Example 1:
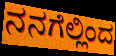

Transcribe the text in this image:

ನನಗೆಲ್ಲಿಂದ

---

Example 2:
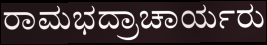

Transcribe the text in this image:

ರಾಮಭದ್ರಾಚಾರ್ಯರು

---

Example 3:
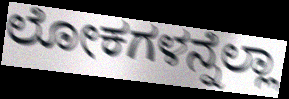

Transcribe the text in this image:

ಲೋಕಗಳನ್ನೆಲ್ಲಾ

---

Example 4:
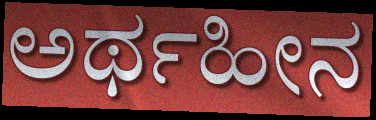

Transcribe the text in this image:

ಅರ್ಥಹೀನ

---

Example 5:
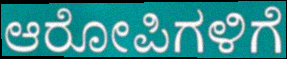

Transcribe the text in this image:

ಆರೋಪಿಗಳಿಗೆ